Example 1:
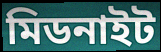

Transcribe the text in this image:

মিডনাইট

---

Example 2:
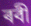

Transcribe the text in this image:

ৰবী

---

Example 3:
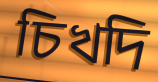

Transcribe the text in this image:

চিখদি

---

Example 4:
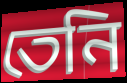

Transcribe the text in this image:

তেনি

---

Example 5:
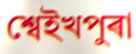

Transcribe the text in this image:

শ্বেইখপুৰা